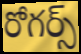
రోగర్స్